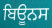
ਬਿਊਨਸ